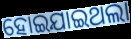
ହୋଇଯାଇଥଲା